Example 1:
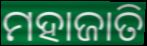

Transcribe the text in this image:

ମହାଜାତି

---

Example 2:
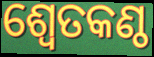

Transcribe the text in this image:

ଶ୍ୱେତକଣ୍ଠ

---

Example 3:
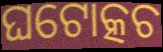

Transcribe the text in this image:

ଘଟୋତ୍କଚ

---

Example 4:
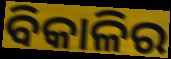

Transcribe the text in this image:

ବିକାଳିର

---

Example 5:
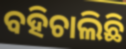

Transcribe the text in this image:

ବହିଚାଲିଛି